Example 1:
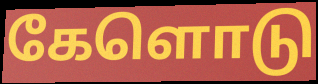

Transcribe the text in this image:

கேளொடு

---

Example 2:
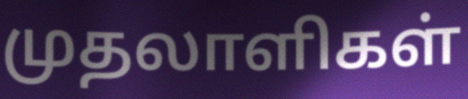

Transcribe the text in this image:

முதலாளிகள்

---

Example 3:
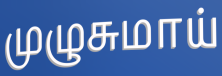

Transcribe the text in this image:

முழுசுமாய்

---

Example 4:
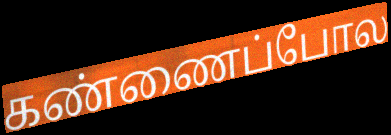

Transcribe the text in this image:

கண்ணைப்போல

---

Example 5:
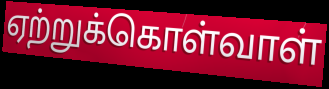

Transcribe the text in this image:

ஏற்றுக்கொள்வாள்